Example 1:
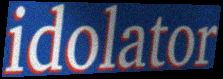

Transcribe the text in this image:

idolator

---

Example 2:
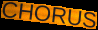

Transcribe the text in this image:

CHORUS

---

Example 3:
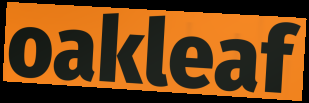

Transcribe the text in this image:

oakleaf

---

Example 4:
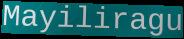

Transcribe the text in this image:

Mayiliragu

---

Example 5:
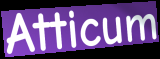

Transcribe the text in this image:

Atticum